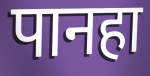
पानहा